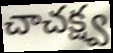
చాచక్ష్వ